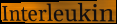
Interleukin